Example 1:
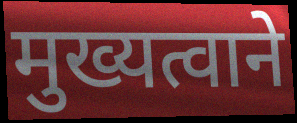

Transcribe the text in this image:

मुख्यत्वाने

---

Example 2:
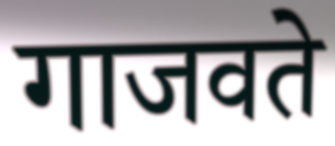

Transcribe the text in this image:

गाजवते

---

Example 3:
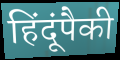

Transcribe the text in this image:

हिंदूंपैकी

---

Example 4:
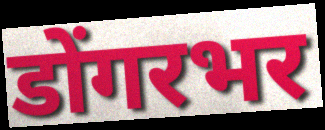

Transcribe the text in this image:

डोंगरभर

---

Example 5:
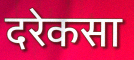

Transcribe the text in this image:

दरेकसा